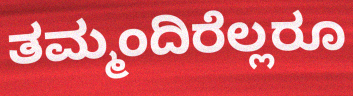
ತಮ್ಮಂದಿರೆಲ್ಲರೂ